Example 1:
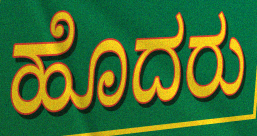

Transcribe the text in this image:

ಹೊದರು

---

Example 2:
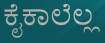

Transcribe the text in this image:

ಕೈಕಾಲೆಲ್ಲ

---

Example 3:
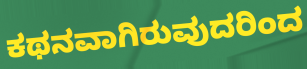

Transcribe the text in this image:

ಕಥನವಾಗಿರುವುದರಿಂದ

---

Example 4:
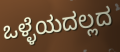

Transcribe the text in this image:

ಒಳ್ಳೆಯದಲ್ಲದ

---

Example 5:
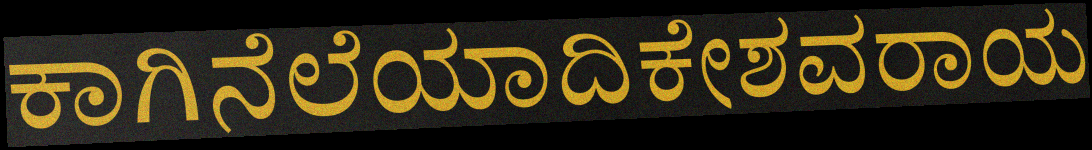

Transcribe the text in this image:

ಕಾಗಿನೆಲೆಯಾದಿಕೇಶವರಾಯ